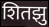
शितझु